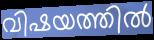
വിഷയത്തിൽ